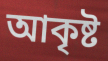
আকৃষ্ট